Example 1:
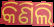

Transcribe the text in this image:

କିଣିଲି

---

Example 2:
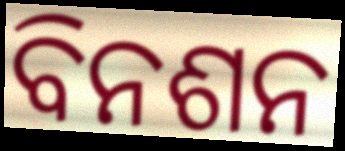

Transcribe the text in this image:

ବିନଶନ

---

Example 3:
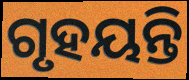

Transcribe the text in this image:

ଗୃହୟନ୍ତି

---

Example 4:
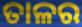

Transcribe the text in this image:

ତାଳର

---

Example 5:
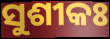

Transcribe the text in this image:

ସୁଶୀକଃ